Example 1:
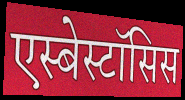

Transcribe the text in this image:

एस्बेस्टॉसिस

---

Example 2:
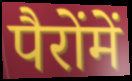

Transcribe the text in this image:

पैरोंमें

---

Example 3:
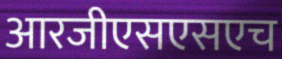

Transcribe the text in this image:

आरजीएसएसएच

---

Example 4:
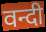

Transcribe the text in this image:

वन्दी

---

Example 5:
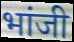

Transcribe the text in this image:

भांजी